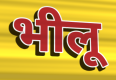
भीलू